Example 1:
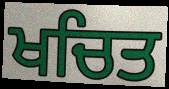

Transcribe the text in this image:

ਖਚਿਤ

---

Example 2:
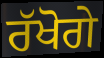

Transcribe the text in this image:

ਰੱਖੋਗੇ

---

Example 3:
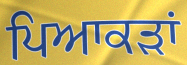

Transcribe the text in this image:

ਪਿਆਕੜਾਂ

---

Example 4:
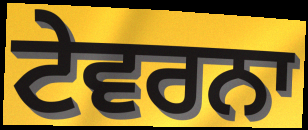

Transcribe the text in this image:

ਟੇਵਰਨਾ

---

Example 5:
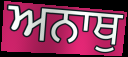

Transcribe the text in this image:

ਅਨਾਥੁ